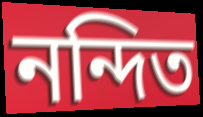
নন্দিত